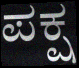
ಪಕ್ಷ